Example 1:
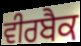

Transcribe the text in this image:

ਵੀਰਬੈਕ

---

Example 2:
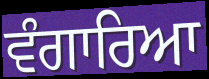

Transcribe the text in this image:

ਵੰਗਾਰਿਆ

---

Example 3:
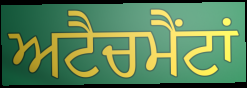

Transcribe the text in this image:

ਅਟੈਚਮੈਂਟਾਂ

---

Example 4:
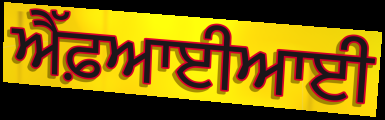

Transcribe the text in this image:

ਐੱਫ਼ਆਈਆਈ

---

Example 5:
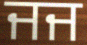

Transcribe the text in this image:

ਜਜ